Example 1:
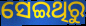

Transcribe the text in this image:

ସେଇଥିରୁ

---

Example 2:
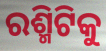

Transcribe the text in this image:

ରଶ୍ମିଟିକୁ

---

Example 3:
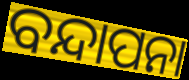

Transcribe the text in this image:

ବନ୍ଦାପନା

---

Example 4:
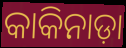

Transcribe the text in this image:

କାକିନାଡ଼ା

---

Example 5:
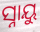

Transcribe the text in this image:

ସ୍ନାୟୁ